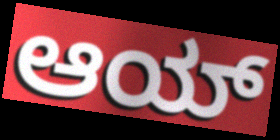
ಆಯ್